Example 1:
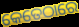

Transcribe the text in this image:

କେତେଠାରେ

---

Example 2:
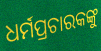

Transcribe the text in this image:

ଧର୍ମପ୍ରଚାରକଙ୍କୁ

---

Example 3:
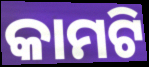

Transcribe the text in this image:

କାମଟି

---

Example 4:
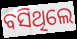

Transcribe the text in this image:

ବସିଥିଲେ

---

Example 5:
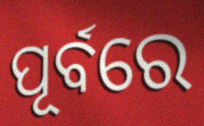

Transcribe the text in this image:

ପୂର୍ବରେ